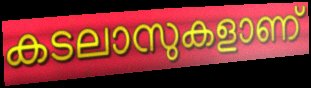
കടലാസുകളാണ്